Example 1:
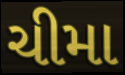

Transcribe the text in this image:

ચીમા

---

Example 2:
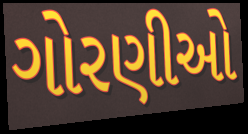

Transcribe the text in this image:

ગોરણીઓ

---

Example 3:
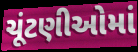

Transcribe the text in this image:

ચૂંટણીઓમાં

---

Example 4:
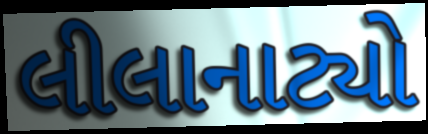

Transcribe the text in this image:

લીલાનાટ્યો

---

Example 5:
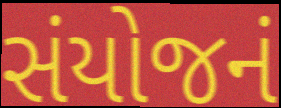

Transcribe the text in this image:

સંયોજનં